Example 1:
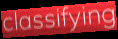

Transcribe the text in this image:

classifying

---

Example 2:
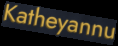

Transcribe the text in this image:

Katheyannu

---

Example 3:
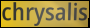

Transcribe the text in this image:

chrysalis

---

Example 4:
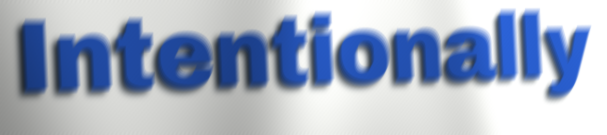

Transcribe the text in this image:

Intentionally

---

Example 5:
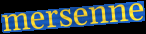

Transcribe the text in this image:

mersenne